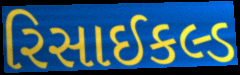
રિસાઈકલ્ડ